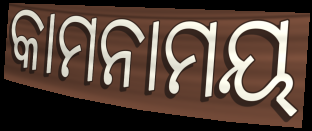
କାମନାମୟ